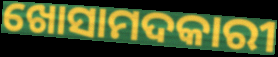
ଖୋସାମଦକାରୀ